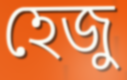
হেজু